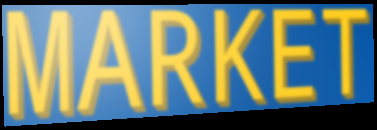
MARKET